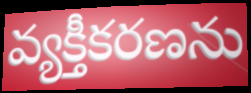
వ్యక్తీకరణను